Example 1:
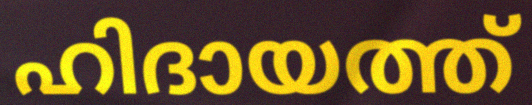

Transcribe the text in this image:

ഹിദായത്ത്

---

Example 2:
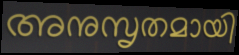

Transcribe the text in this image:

അനുസൃതമായി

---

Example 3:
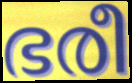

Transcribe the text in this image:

ഭരീ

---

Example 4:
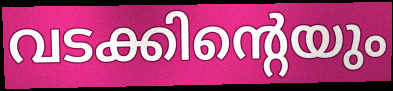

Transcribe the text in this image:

വടക്കിന്റെയും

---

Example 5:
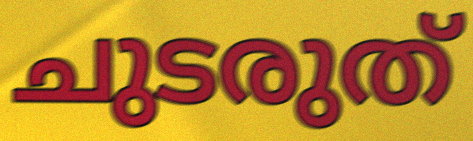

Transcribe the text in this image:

ചുടരുത്